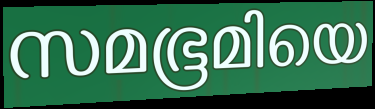
സമഭൂമിയെ